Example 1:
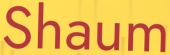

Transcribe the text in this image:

Shaum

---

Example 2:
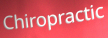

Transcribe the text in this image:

Chiropractic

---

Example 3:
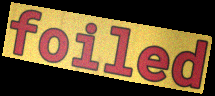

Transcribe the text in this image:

foiled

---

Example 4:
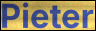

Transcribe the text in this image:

Pieter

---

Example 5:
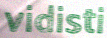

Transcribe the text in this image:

vidisti